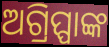
ଅଗ୍ରିପ୍ପାଙ୍କ